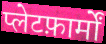
प्लेटफ़ार्मों